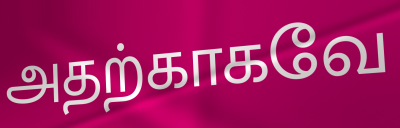
அதற்காகவே